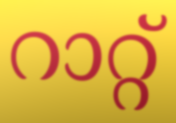
റാറ്റ്